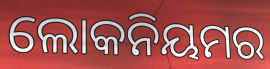
ଲୋକନିୟମର